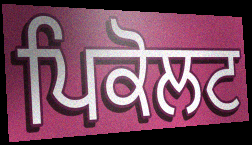
ਪਿਕੋਲਟ